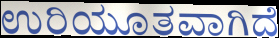
ಉರಿಯೂತವಾಗಿದೆ